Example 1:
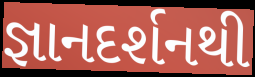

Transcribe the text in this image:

જ્ઞાનદર્શનથી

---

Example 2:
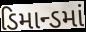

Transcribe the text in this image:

ડિમાન્ડમાં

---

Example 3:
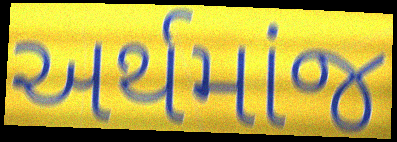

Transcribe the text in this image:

અર્થમાંજ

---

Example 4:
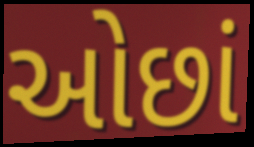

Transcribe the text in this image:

ઓછાં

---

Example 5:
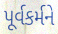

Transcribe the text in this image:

પૂર્વકર્મને